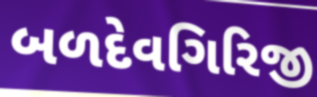
બળદેવગિરિજી